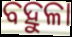
ବହୁଳା